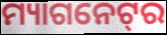
ମ୍ୟାଗନେଟ୍‌ର